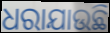
ଧରାଯାଉଛି